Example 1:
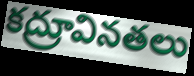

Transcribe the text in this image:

కద్రూవినతలు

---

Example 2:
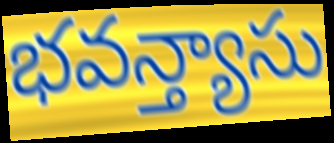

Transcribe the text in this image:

భవన్త్యాసు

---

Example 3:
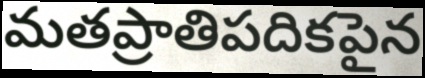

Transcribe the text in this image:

మతప్రాతిపదికపైన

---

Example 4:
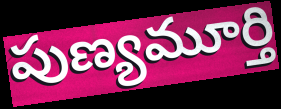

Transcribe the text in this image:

పుణ్యమూర్తి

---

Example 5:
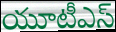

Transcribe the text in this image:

యూటీఎస్